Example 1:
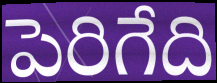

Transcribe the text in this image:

పెరిగేది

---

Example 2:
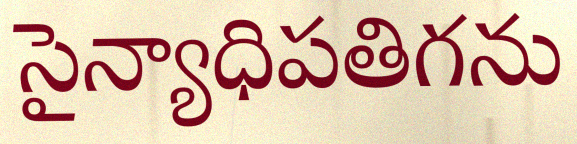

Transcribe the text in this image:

సైన్యాధిపతిగను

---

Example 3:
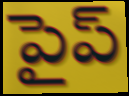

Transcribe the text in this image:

పైప్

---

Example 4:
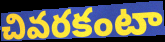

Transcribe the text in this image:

చివరకంటా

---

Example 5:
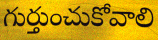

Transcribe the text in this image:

గుర్తుంచుకోవాలి